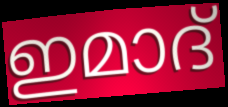
ഇമാദ്